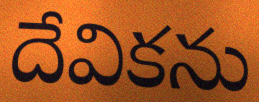
దేవికను